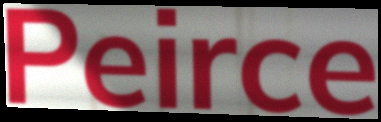
Peirce